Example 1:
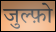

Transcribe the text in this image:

जुल्फ़ो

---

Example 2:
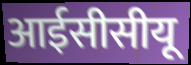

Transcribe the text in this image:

आईसीसीयू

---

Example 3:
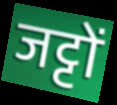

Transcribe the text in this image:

जट्टों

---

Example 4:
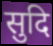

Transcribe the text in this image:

सुदि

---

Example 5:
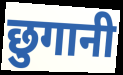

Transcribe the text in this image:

छुगानी